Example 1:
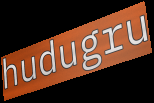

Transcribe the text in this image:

hudugru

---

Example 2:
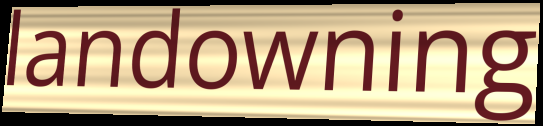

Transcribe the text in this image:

landowning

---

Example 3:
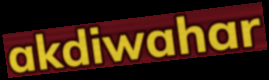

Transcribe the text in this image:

akdiwahar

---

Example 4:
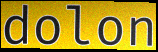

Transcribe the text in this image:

dolon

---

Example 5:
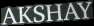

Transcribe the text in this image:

AKSHAY